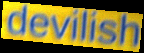
devilish